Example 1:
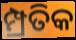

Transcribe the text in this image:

ମ୍ପ୍ରତିକ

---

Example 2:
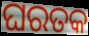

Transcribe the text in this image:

ଘରତକ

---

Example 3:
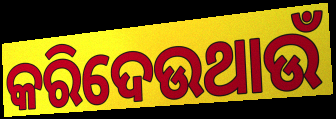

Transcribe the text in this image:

କରିଦେଉଥାଉଁ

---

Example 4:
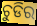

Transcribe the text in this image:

ଚୁଡିର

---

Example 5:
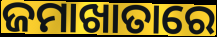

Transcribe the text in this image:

ଜମାଖାତାରେ